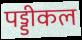
पड्डीकल